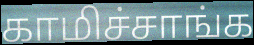
காமிச்சாங்க